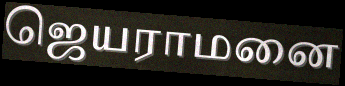
ஜெயராமனை